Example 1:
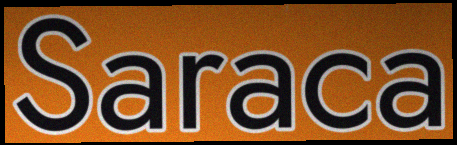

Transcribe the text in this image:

Saraca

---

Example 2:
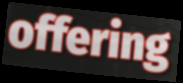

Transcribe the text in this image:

offering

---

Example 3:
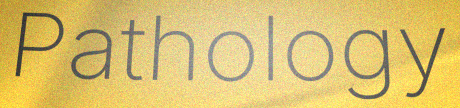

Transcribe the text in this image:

Pathology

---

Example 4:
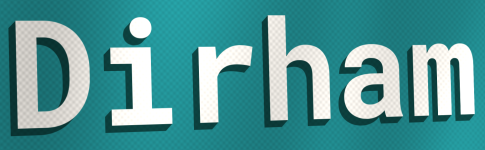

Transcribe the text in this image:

Dirham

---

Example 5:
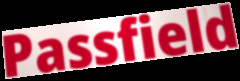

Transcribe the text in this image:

Passfield